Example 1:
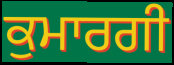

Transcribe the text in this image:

ਕੁਮਾਰਗੀ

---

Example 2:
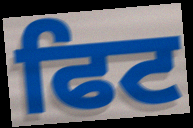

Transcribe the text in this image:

ਫਿਟ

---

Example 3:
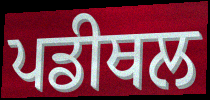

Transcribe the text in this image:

ਪਡੀਥਲ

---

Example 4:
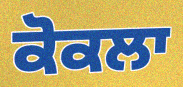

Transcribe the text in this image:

ਕੋਕਲਾ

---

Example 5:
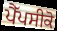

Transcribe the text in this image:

ਪੈੱਪਸੀਕੋ